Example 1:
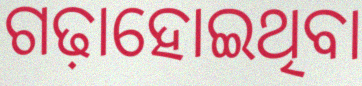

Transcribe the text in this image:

ଗଢ଼ାହୋଇଥିବା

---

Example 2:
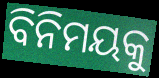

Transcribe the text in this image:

ବିନିମୟକୁ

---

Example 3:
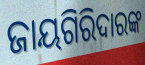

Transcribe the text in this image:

ଜାୟଗିରିଦାରଙ୍କ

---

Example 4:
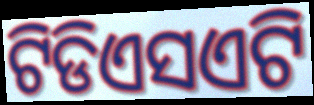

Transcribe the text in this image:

ଟିଡିଏସଏଟି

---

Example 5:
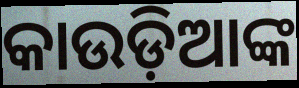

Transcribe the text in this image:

କାଉଡ଼ିଆଙ୍କ